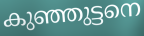
കുഞ്ഞുട്ടനെ